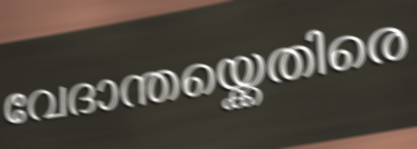
വേദാന്തയ്ക്കെതിരെ